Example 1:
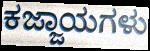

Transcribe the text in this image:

ಕಜ್ಜಾಯಗಳು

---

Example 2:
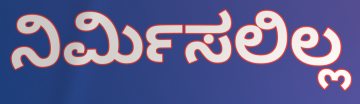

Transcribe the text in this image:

ನಿರ್ಮಿಸಲಿಲ್ಲ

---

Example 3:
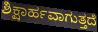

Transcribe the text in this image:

ಶಿಕ್ಷಾರ್ಹವಾಗುತ್ತದೆ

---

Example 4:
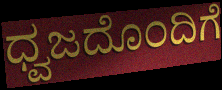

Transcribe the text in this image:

ಧ್ವಜದೊಂದಿಗೆ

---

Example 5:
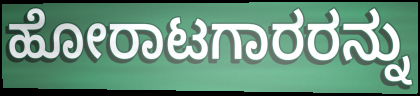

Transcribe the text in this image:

ಹೋರಾಟಗಾರರನ್ನು